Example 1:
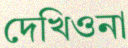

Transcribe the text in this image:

দেখিওনা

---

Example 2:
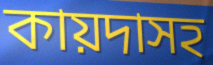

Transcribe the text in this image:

কায়দাসহ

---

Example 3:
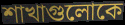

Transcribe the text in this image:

শাখাগুলোকে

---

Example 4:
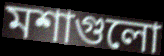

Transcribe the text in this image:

মশাগুলো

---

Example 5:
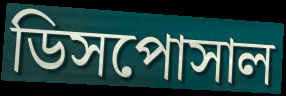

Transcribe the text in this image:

ডিসপোসাল